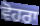
ਵੋਹਰਾ